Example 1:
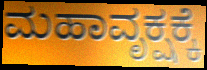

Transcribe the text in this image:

ಮಹಾವೃಕ್ಷಕ್ಕೆ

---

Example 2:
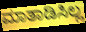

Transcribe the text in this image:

ಮಾತಾಡಿಸಿಲ್ಲ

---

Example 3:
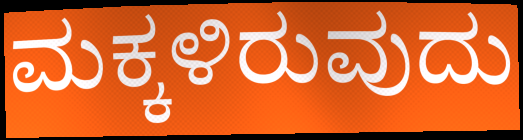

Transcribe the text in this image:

ಮಕ್ಕಳಿರುವುದು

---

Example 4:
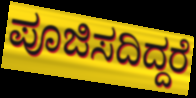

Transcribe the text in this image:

ಪೂಜಿಸದಿದ್ದರೆ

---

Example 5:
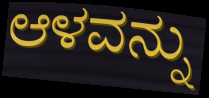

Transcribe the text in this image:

ಆಳವನ್ನು